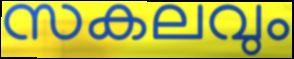
സകലവും